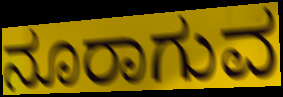
ನೂರಾಗುವ